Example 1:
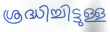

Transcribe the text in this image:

ശ്രദ്ധിച്ചിട്ടുള്ള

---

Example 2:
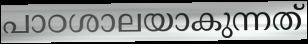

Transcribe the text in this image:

പാഠശാലയാകുന്നത്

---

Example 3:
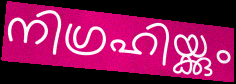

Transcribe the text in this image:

നിഗ്രഹിയ്ക്കും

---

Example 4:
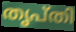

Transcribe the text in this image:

തൃപ്തി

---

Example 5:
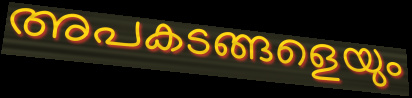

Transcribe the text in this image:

അപകടങ്ങളെയും